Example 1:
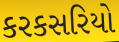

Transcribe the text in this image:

કરકસરિયો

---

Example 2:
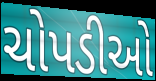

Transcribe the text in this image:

ચોપડીઓ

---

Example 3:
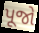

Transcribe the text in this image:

પૂજો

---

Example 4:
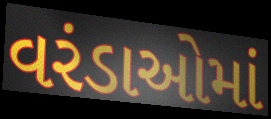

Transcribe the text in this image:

વરંડાઓમાં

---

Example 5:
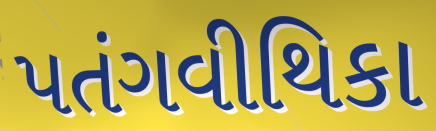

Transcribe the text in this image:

પતંગવીથિકા